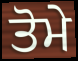
ਤੋਮੇ